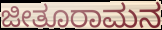
ಜೀತೂರಾಮನ